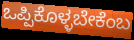
ಒಪ್ಪಿಕೊಳ್ಳಬೇಕೆಂಬ